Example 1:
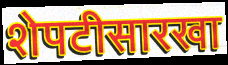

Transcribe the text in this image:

शेपटीसारखा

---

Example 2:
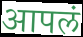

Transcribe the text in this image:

आपलं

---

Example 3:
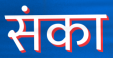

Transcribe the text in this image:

संका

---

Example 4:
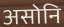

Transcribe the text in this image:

असोनि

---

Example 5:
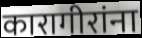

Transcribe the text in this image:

कारागीरांना